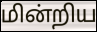
மின்றிய